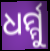
ଧର୍ମ୍ମୁ